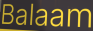
Balaam